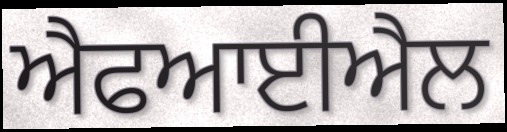
ਐਫਆਈਐਲ